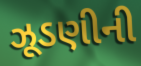
ઝૂડણીની